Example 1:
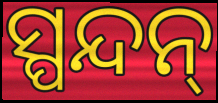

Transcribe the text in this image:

ସ୍ପନ୍ଦନ୍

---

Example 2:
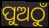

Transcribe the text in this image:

ପୁଅଠୁଁ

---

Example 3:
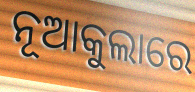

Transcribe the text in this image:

ନୂଆକୁଲାରେ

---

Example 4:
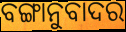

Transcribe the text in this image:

ବଙ୍ଗାନୁବାଦର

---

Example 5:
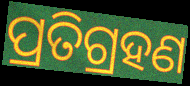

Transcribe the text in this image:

ପ୍ରତିଗ୍ରହଣ